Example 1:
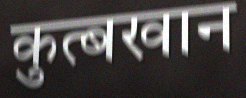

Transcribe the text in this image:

कुत्बखान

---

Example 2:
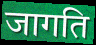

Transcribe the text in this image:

जागति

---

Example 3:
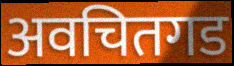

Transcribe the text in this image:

अवचितगड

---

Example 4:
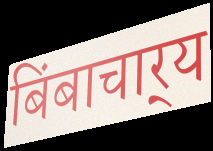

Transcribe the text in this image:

बिंबाचार्य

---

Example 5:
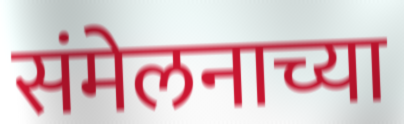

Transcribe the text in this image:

संमेलनाच्या